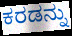
ಕರಡನ್ನು